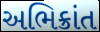
અભિક્રાંત